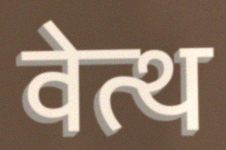
वेत्थ